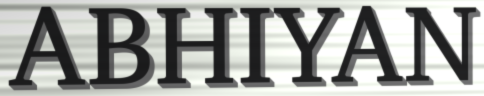
ABHIYAN